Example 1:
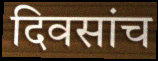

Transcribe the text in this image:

दिवसांच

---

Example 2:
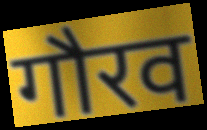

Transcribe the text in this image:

गौरव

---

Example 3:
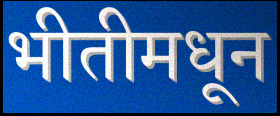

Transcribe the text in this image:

भीतीमधून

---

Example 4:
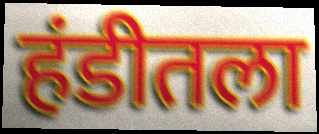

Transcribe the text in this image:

हंडीतला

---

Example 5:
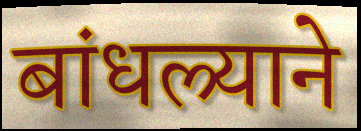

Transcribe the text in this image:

बांधल्याने